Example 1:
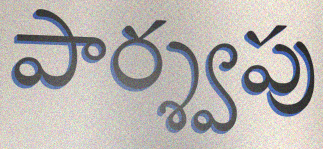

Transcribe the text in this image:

పార్శ్వపు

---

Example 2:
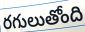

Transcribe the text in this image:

రగులుతోంది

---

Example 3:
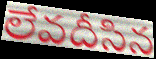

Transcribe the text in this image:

లేవదీసిన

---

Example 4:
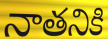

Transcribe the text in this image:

నాతనికి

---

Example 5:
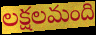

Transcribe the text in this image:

లక్షలమంది